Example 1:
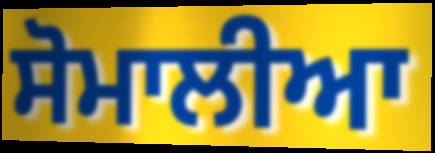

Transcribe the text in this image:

ਸੋਮਾਲੀਆ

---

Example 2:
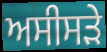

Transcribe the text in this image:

ਅਸੀਸੜੇ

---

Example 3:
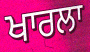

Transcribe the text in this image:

ਖਾਰਲਾ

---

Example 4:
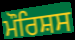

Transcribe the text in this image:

ਮੌਰਿਸ਼ਸ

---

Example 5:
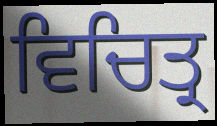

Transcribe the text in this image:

ਵਿਚਿਤ੍ਰ